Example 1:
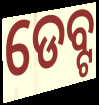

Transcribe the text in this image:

ଡେବ୍ଟ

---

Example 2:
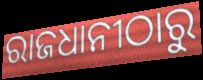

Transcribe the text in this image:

ରାଜଧାନୀଠାରୁ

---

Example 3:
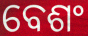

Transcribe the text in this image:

ବେଶଂ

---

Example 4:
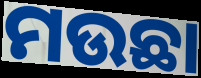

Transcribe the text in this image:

ମଉଛା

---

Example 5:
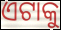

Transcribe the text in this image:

ଏଟାକୁ